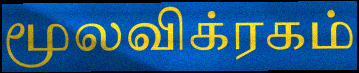
மூலவிக்ரகம்